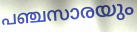
പഞ്ചസാരയും